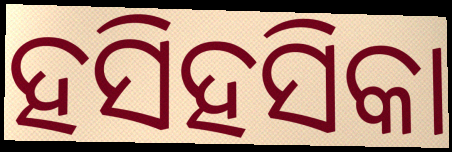
ହସିହସିକା